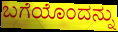
ಬಗೆಯೊಂದನ್ನು